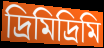
দ্রিমিদ্রিমি